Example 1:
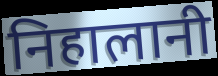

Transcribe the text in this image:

निहालानी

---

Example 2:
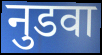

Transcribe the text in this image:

नुडवा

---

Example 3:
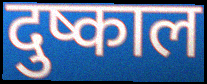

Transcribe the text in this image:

दुष्काल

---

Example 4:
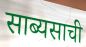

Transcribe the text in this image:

साब्यसाची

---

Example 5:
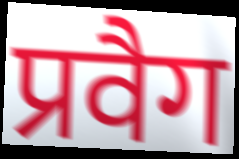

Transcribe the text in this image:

प्रवैग